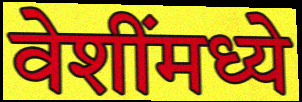
वेशींमध्ये